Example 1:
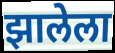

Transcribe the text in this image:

झालेला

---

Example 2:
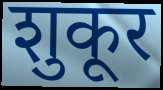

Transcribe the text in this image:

शुकूर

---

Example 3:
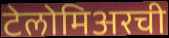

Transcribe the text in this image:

टेलोमिअरची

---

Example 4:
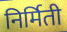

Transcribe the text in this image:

निर्मिती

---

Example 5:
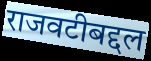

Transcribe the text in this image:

राजवटीबद्दल